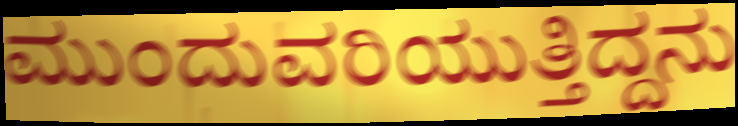
ಮುಂದುವರಿಯುತ್ತಿದ್ದನು